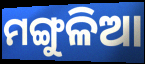
ମଙ୍ଗୁଳିଆ